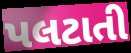
પલટાતી